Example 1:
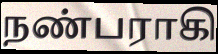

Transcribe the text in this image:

நண்பராகி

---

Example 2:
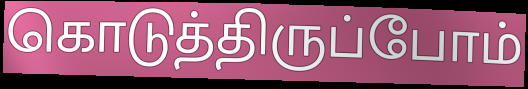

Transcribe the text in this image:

கொடுத்திருப்போம்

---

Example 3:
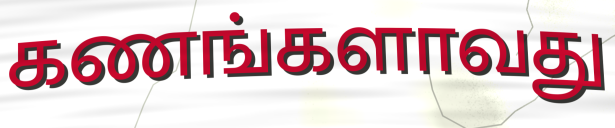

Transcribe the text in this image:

கணங்களாவது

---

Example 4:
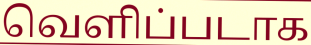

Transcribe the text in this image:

வெளிப்படாக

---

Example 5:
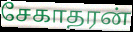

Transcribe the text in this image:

சேகாதரன்